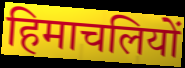
हिमाचलियों